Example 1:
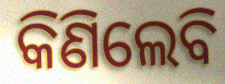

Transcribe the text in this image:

କିଣିଲେବି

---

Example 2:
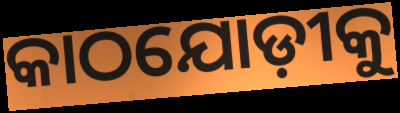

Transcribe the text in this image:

କାଠଯୋଡ଼ୀକୁ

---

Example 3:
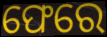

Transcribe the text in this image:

ଫେରେ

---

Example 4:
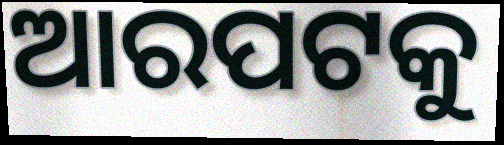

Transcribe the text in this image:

ଆରପଟକୁ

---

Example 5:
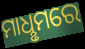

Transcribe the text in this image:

ମାଧୢମରେ